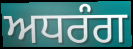
ਅਧਰੰਗ